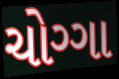
ચોગ્ગા